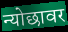
न्योछावर